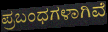
ಪ್ರಬಂಧಗಳಾಗಿವೆ